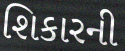
શિકારની